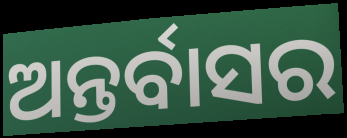
ଅନ୍ତର୍ବାସର